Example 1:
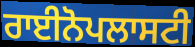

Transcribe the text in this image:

ਰਾਈਨੋਪਲਾਸਟੀ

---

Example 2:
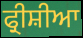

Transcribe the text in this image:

ਫ੍ਰੀਸ਼ੀਆ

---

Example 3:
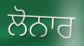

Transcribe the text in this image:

ਲੋਨਾਰ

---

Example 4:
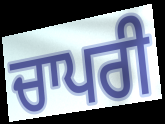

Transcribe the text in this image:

ਚਾਪਰੀ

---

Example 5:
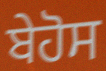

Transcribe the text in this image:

ਬੇਹੋਸ